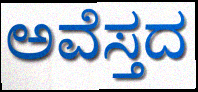
ಅವೆಸ್ತದ